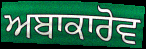
ਅਬਾਕਾਰੋਵ